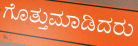
ಗೊತ್ತುಮಾಡಿದರು